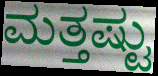
ಮತ್ತಷ್ಟು